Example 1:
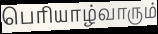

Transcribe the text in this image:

பெரியாழ்வாரும்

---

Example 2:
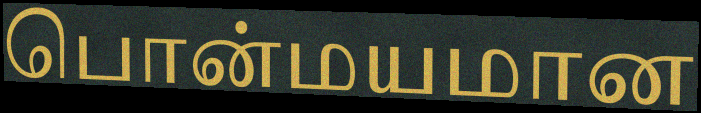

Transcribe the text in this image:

பொன்மயமான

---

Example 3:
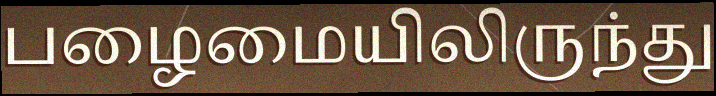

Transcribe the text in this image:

பழைமையிலிருந்து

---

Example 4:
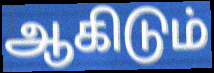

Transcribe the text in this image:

ஆகிடும்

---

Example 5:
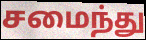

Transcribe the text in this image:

சமைந்து